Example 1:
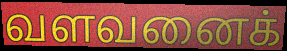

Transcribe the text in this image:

வளவனைக்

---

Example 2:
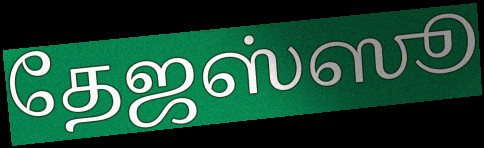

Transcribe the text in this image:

தேஜஸ்ஸூ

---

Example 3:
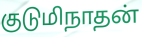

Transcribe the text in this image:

குடுமிநாதன்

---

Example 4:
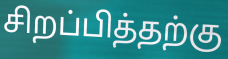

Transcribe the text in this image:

சிறப்பித்தற்கு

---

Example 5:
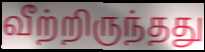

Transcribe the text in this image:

வீற்றிருந்தது